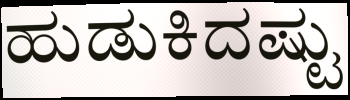
ಹುಡುಕಿದಷ್ಟು